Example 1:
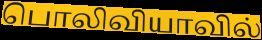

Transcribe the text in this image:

பொலிவியாவில்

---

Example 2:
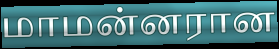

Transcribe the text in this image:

மாமன்னரான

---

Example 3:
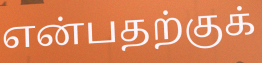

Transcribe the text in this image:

என்பதற்குக்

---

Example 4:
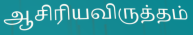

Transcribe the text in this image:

ஆசிரியவிருத்தம்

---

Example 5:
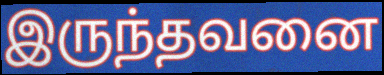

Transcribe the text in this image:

இருந்தவனை